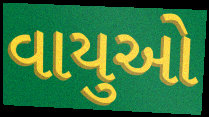
વાયુઓ